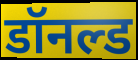
डॉनल्ड